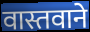
वास्तवाने